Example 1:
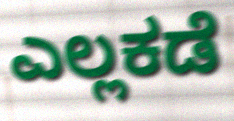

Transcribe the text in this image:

ಎಲ್ಲಕಡೆ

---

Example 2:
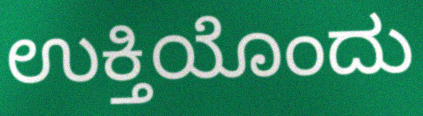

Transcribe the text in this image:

ಉಕ್ತಿಯೊಂದು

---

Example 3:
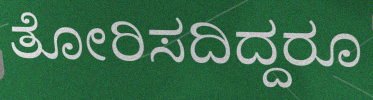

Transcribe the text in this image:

ತೋರಿಸದಿದ್ದರೂ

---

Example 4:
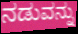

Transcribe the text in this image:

ನಡುವನ್ನು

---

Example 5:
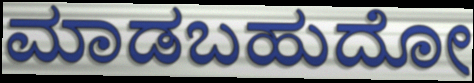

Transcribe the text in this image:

ಮಾಡಬಹುದೋ